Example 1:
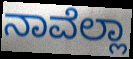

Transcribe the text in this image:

ನಾವೆಲ್ಲಾ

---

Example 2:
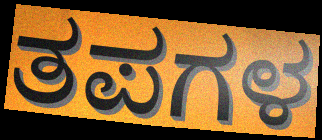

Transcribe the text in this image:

ತಪಗಳ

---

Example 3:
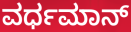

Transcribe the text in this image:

ವರ್ಧಮಾನ್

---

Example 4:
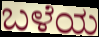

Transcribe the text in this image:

ಬಳೆಯ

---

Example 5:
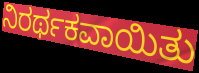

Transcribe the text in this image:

ನಿರರ್ಥಕವಾಯಿತು